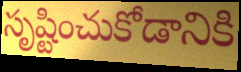
సృష్టించుకోడానికి